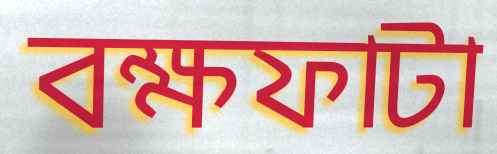
বক্ষফাটা